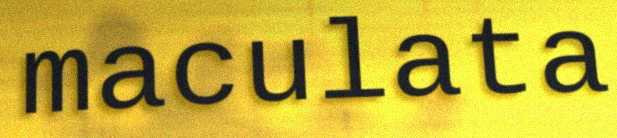
maculata